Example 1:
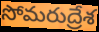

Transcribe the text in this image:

సోమరుద్రేశ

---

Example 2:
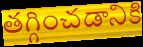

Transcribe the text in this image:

తగ్గించడానికి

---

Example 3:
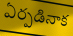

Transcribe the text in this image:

ఏర్పడినాక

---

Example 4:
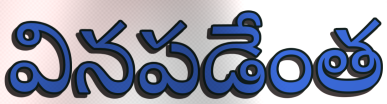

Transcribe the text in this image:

వినపడేంత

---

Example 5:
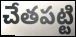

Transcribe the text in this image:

చేతపట్టి